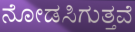
ನೋಡಸಿಗುತ್ತವೆ